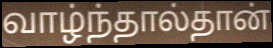
வாழ்ந்தால்தான்